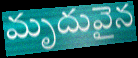
మృదువైన